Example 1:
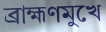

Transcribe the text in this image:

ব্রাহ্মণমুখে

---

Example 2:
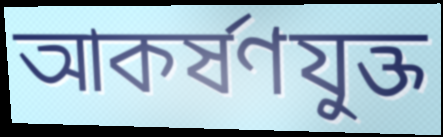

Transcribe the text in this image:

আকর্ষণযুক্ত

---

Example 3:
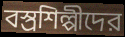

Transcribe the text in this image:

বস্ত্রশিল্পীদের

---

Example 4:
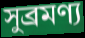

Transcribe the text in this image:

সুব্রমণ্য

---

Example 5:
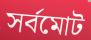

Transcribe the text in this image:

সর্বমোট